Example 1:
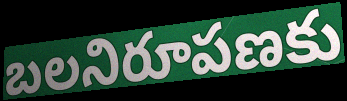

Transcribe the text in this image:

బలనిరూపణకు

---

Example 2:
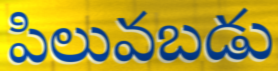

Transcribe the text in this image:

పిలువబడు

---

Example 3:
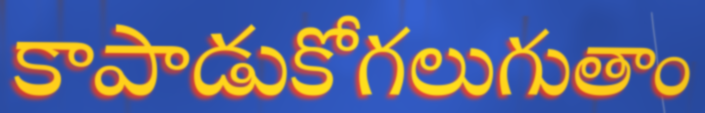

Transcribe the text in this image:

కాపాడుకోగలుగుతాం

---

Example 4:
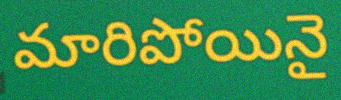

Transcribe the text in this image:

మారిపోయినై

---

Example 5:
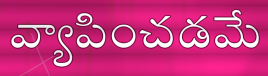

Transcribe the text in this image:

వ్యాపించడమే